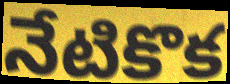
నేటికొక